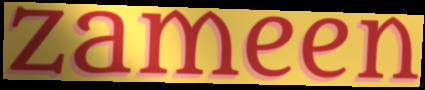
zameen